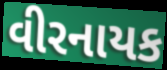
વીરનાયક